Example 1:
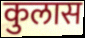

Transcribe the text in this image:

कुलास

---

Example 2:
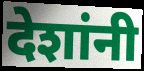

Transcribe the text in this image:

देशांनी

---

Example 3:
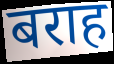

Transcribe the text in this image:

बराह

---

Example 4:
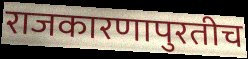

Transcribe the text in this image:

राजकारणापुरतीच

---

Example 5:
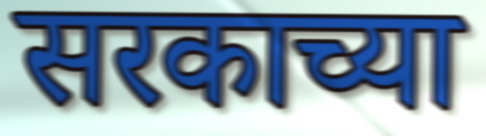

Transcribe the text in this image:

सरकाच्या